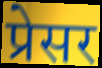
प्रेसर